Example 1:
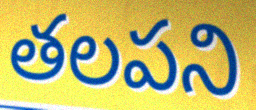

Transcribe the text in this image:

తలపని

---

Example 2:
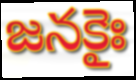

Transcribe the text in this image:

జనకైః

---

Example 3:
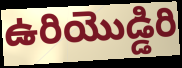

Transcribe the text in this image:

ఉరియొడ్డిరి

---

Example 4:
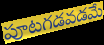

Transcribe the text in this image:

పూటగడవడమే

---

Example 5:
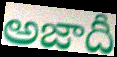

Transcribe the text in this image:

అజాదీ